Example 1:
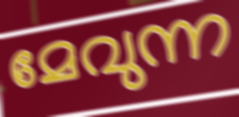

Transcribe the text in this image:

മേവുന്ന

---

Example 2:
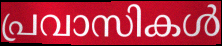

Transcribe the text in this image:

പ്രവാസികൾ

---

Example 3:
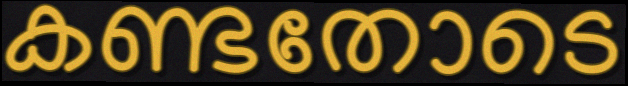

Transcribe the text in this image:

കണ്ടതോടെ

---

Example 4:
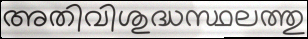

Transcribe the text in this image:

അതിവിശുദ്ധസ്ഥലത്തു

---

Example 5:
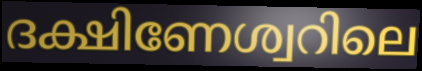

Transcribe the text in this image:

ദക്ഷിണേശ്വറിലെ